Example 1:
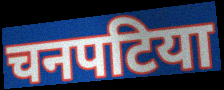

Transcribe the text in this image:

चनपटिया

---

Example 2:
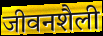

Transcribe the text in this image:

जीवनशैली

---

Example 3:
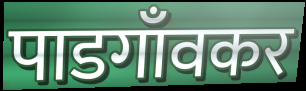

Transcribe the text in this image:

पाडगाँवकर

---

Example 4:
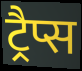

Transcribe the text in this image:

ट्रैप्स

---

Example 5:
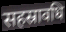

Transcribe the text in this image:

सहस्रावधि